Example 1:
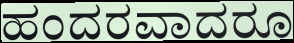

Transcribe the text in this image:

ಹಂದರವಾದರೂ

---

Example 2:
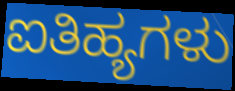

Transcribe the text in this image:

ಐತಿಹ್ಯಗಳು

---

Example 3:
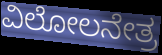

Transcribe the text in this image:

ವಿಲೋಲನೇತ್ರ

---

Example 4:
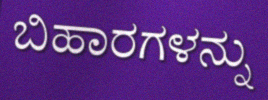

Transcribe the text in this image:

ಬಿಹಾರಗಳನ್ನು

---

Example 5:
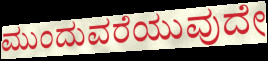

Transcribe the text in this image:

ಮುಂದುವರೆಯುವುದೇ